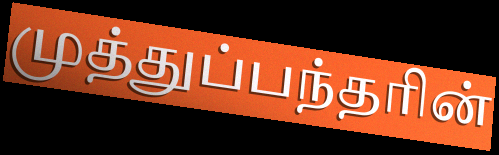
முத்துப்பந்தரின்